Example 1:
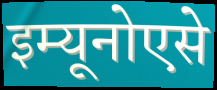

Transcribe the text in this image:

इम्यूनोएसे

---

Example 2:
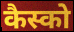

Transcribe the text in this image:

कैस्को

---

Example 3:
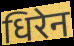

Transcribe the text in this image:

धिरेन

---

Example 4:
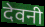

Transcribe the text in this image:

देवनी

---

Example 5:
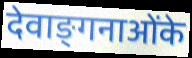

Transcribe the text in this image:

देवाङ्गनाओंके